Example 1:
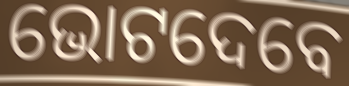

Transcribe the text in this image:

ଭୋଟଦେବେ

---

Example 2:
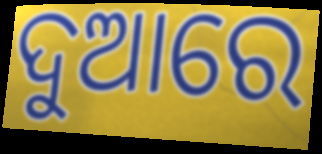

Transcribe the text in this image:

ଦୁଆରେ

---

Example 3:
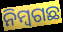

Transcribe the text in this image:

ନିମ୍ୱଗଛ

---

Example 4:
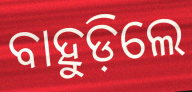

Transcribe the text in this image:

ବାହୁଡ଼ିଲେ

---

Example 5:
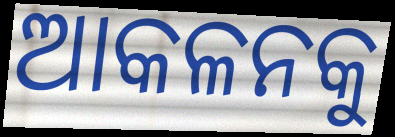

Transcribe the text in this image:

ଆକଳନକୁ